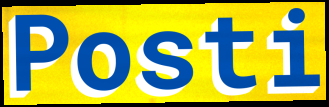
Posti